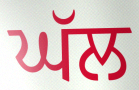
ਘੱਲ